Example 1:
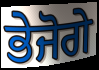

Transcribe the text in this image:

ਭੇਜੋਗੇ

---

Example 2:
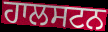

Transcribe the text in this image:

ਹਾਲਸਟਨ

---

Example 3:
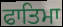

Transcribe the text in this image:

ਫਾਤਿਮਾ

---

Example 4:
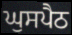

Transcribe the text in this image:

ਘੁਸਪੈਠ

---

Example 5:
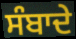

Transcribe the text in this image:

ਸੰਬਾਦੇ